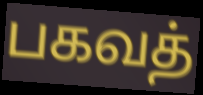
பகவத்